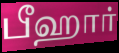
பீஹார்